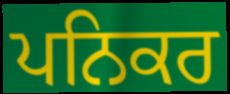
ਪਨਿਕਰ